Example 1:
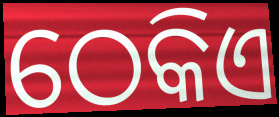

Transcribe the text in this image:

ଠେକିଏ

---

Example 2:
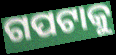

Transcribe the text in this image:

ଗପଟାକୁ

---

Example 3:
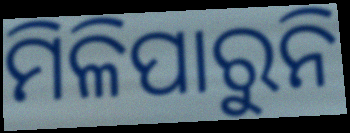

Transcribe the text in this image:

ମିଳିପାରୁନି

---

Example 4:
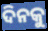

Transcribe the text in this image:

ଦିନକୁ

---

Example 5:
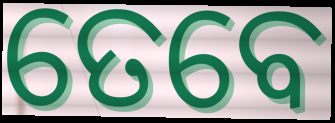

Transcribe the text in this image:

ତେବେ